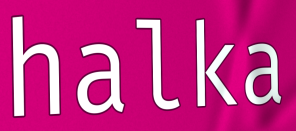
halka